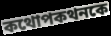
কথোপকথনকে